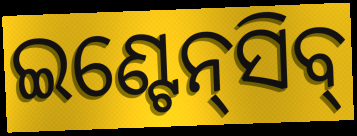
ଇଣ୍ଟେନ୍‍ସିବ୍